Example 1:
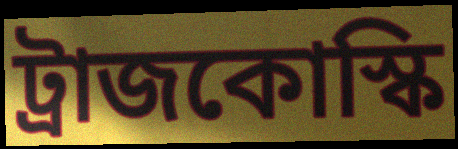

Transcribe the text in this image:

ট্রাজকোস্কি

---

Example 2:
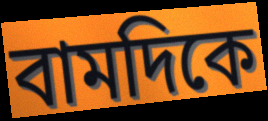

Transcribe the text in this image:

বামদিকে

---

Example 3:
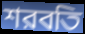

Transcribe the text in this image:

শরবতি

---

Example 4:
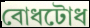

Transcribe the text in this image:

বোধটোধ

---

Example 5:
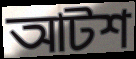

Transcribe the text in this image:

আটশ